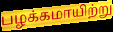
பழக்கமாயிற்று